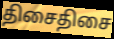
திசைதிசை